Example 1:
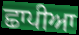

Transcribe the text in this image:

ਛਾਪੀਆ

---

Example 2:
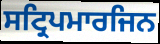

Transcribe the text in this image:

ਸਟ੍ਰਿਪਮਾਰਜਿਨ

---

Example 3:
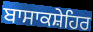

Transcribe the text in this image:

ਬਾਸਾਕਸ਼ੇਹਿਰ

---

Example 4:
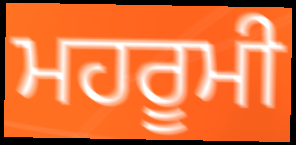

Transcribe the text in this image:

ਮਹਰੂਮੀ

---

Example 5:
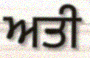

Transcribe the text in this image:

ਅਤੀ